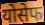
योसेफ